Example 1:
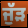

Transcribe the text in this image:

ਜੁੱੜ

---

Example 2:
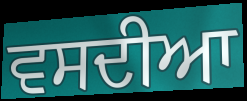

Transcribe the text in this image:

ਵਸਦੀਆ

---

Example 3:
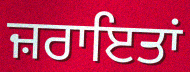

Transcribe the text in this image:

ਜ਼ਰਾਇਤਾਂ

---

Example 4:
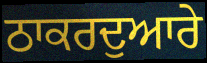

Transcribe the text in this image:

ਠਾਕਰਦੁਆਰੇ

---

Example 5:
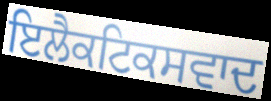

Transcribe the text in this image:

ਇਲੈਕਟਿਕਸਵਾਦ